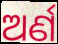
ଅର୍ଣ